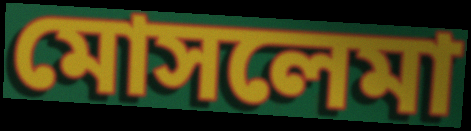
মোসলেমা